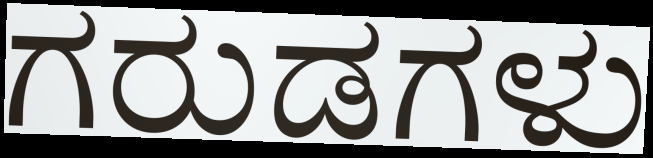
ಗರುಡಗಳು